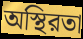
অস্থিরতা